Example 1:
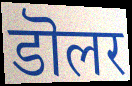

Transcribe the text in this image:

डॊलर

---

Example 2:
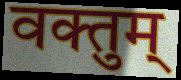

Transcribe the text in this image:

वक्तुम्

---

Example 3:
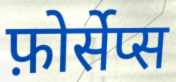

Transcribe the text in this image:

फ़ोर्सेप्स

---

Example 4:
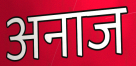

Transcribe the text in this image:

अनाज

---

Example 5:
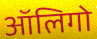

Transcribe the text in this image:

ऑलिगो